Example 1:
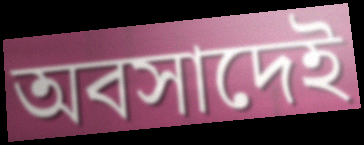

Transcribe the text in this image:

অবসাদেই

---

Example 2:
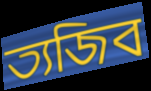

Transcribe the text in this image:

ত্যজিব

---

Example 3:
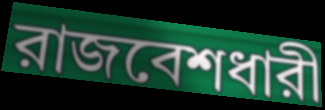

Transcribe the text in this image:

রাজবেশধারী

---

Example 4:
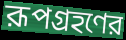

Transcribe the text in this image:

রূপগ্রহণের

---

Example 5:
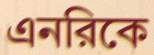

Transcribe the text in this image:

এনরিকে